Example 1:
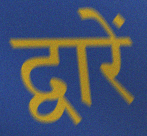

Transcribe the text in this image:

द्वारें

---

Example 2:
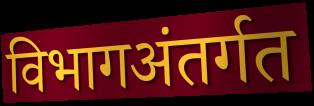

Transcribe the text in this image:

विभागअंतर्गत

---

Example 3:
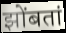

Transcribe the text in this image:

झोंबतां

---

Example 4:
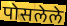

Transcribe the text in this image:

पोसलेले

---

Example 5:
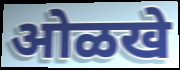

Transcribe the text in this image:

ओळखे